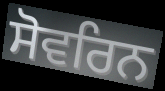
ਸੋਵਰਿਨ